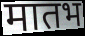
मातभ